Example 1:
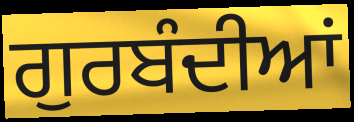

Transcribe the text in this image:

ਗੁਰਬੰਦੀਆਂ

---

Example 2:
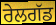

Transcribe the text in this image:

ਰੇਲਗੱਡ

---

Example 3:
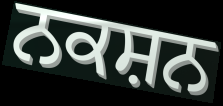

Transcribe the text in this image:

ਨਕਸ਼ਨ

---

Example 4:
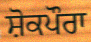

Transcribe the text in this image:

ਸ਼ੋਕਪੌਰਾ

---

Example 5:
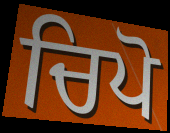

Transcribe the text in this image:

ਚਿਪੋ